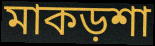
মাকড়শা